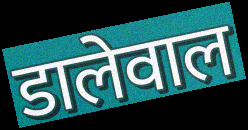
डालेवाल